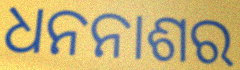
ଧନନାଶର